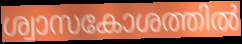
ശ്വാസകോശത്തിൽ